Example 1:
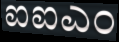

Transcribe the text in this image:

ಐಐಎಂ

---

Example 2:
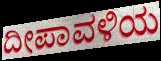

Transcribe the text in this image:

ದೀಪಾವಳಿಯ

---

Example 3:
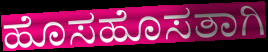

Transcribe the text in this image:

ಹೊಸಹೊಸತಾಗಿ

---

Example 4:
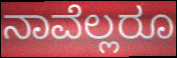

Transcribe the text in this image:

ನಾವೆಲ್ಲರೂ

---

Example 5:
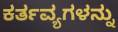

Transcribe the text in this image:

ಕರ್ತವ್ಯಗಳನ್ನು